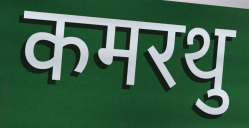
कमरथु